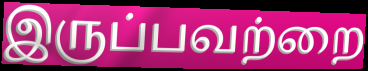
இருப்பவற்றை